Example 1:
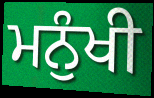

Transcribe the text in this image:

ਮਨੁੰਖੀ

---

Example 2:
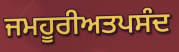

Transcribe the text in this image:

ਜਮਹੂਰੀਅਤਪਸੰਦ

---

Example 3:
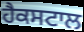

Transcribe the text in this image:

ਹੈਕਸਟਾਲ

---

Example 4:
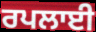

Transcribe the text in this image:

ਰਪਲਾਈ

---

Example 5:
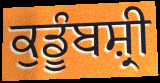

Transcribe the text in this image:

ਕੁਡੂੰਬਸ਼੍ਰੀ